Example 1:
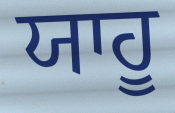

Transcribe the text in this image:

ਯਾਹੂ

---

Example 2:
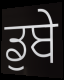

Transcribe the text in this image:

ਡੁਬੇ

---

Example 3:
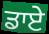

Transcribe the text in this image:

ਡਾਏ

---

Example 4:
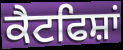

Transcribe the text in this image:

ਕੈਟਫਿਸ਼ਾਂ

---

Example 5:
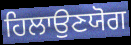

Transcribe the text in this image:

ਹਿਲਾਉਣਯੋਗ